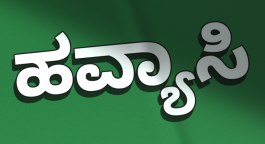
ಹವ್ಯಾಸಿ